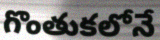
గొంతుకలోనే